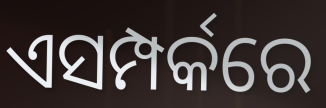
ଏସମ୍ପର୍କରେ